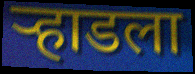
ऱ्हाडला